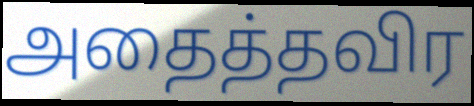
அதைத்தவிர